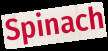
Spinach